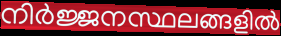
നിർജ്ജനസ്ഥലങ്ങളിൽ